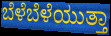
ಬೆಳೆಬೆಳೆಯುತ್ತಾ